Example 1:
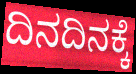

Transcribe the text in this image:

ದಿನದಿನಕ್ಕೆ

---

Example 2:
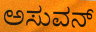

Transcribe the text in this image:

ಅಸುವನ್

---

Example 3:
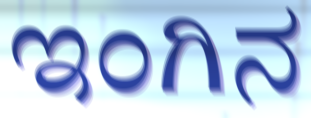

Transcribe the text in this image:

ಇಂಗಿನ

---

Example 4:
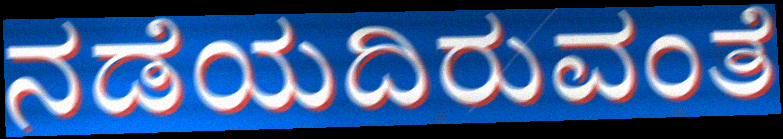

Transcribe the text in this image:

ನಡೆಯದಿರುವಂತೆ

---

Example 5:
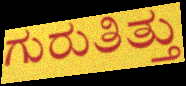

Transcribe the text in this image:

ಗುರುತಿತ್ತು